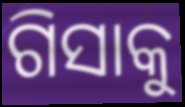
ଗିସାକୁ